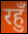
रहुँ